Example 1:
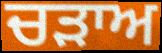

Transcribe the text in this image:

ਚੜਾਅ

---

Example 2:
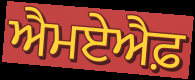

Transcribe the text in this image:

ਐਮਏਐਫ਼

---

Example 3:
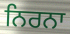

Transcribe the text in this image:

ਨਿਰਨਾ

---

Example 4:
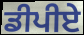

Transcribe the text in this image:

ਡੀਪੀਏ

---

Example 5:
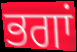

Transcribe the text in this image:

ਭਗਾਂ